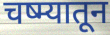
चष्म्यातून